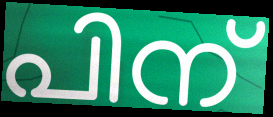
പിന്